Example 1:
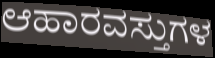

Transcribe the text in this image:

ಆಹಾರವಸ್ತುಗಳ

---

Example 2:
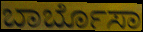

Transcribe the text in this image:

ಬಾರ್ಬೊಸಾ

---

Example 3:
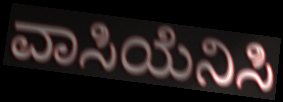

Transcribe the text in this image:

ವಾಸಿಯೆನಿಸಿ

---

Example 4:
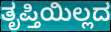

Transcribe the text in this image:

ತೃಪ್ತಿಯಿಲ್ಲದ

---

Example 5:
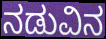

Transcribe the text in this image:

ನಡುವಿನ